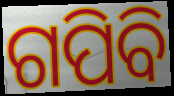
ଗପିବି